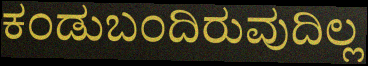
ಕಂಡುಬಂದಿರುವುದಿಲ್ಲ